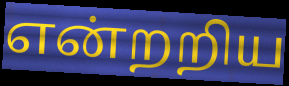
என்றறிய